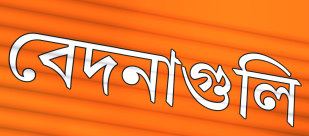
বেদনাগুলি